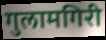
गुलामगिरी